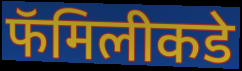
फॅमिलीकडे